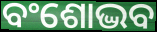
ବଂଶୋଦ୍ଭବ